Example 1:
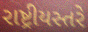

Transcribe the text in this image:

રાષ્ટ્રીયસ્તરે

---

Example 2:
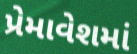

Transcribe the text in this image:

પ્રેમાવેશમાં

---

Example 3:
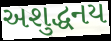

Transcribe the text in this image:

અશુદ્ધનય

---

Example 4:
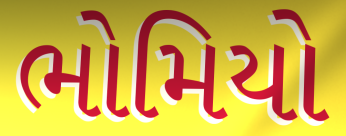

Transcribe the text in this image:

ભોમિયો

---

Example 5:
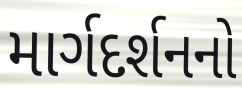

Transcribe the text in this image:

માર્ગદર્શનનો